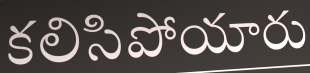
కలిసిపోయారు